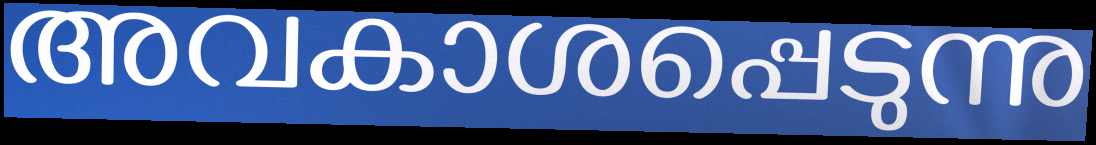
അവകാശപ്പെടുന്നു